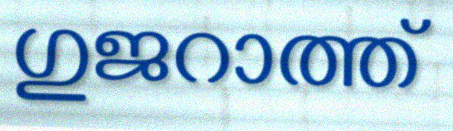
ഗുജറാത്ത്